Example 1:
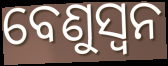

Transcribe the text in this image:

ବେଣୁସ୍ଵନ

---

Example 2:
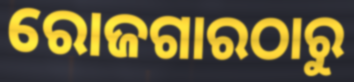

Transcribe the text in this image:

ରୋଜଗାରଠାରୁ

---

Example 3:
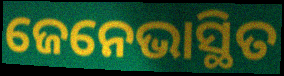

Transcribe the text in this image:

ଜେନେଭାସ୍ଥିତ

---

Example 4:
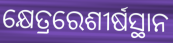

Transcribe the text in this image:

କ୍ଷେତ୍ରରେଶୀର୍ଷସ୍ଥାନ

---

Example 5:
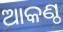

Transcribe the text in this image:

ଆକଣ୍ଠ